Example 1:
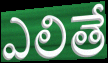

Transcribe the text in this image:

ఎలితే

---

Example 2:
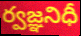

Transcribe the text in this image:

ర్వజ్ఞనిధీ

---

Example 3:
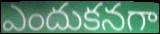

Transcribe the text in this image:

ఎందుకనగా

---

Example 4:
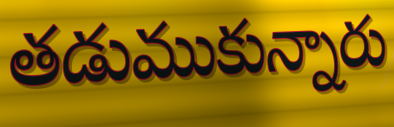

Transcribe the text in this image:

తడుముకున్నారు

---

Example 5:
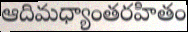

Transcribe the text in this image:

ఆదిమధ్యాంతరహితం